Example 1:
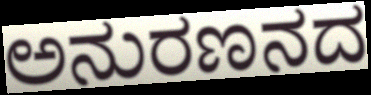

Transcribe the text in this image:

ಅನುರಣನದ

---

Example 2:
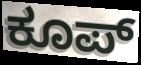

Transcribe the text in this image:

ಕೂಪ್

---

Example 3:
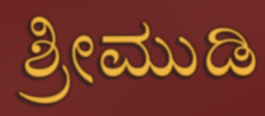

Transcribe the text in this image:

ಶ್ರೀಮುಡಿ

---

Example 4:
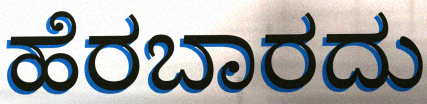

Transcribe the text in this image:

ಹೆರಬಾರದು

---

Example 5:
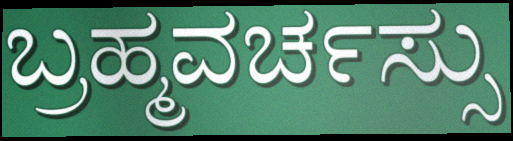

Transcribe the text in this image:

ಬ್ರಹ್ಮವರ್ಚಸ್ಸು